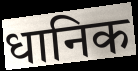
धानिक